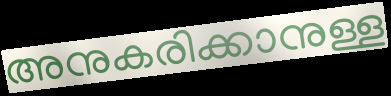
അനുകരിക്കാനുള്ള